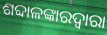
ଶବ୍ଦାଳଙ୍କାରଦ୍ୱାରା